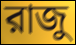
রাজু